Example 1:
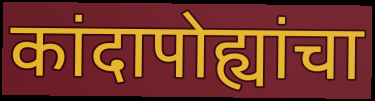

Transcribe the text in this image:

कांदापोह्यांचा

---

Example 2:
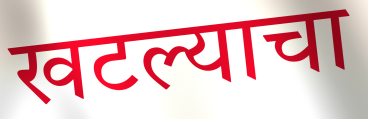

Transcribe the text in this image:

खटल्याचा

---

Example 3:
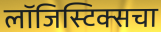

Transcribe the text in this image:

लॉजिस्टिक्सचा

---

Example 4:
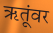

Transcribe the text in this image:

ऋतूंवर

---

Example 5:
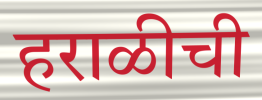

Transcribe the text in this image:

हराळीची